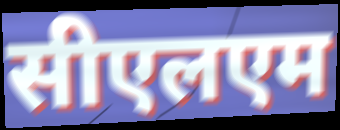
सीएलएम